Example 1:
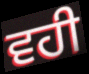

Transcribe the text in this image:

ਵਹੀ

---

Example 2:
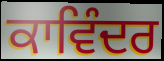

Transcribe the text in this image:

ਕਾਵਿੰਦਰ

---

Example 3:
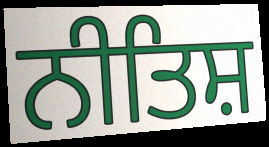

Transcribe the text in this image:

ਨੀਤਿਸ਼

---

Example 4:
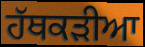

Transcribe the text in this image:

ਹੱਥਕੜੀਆ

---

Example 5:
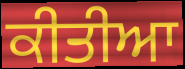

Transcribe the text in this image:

ਕੀਤੀਆ